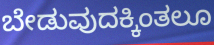
ಬೇಡುವುದಕ್ಕಿಂತಲೂ